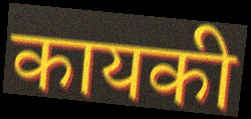
कायकी